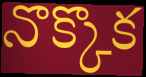
నొక్కొక